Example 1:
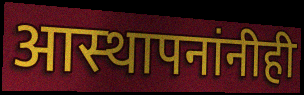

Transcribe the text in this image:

आस्थापनांनीही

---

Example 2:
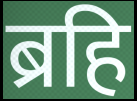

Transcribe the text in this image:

ब्रहि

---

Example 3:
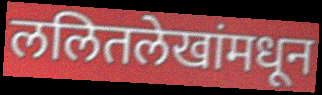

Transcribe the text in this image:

ललितलेखांमधून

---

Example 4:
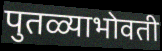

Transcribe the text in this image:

पुतळ्याभोवती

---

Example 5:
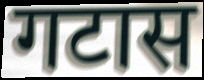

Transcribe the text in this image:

गटास